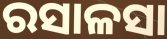
ରସାଳସା